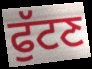
ਫੁੱਟਣ